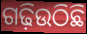
ଗଢ଼ିଉଠିଛି